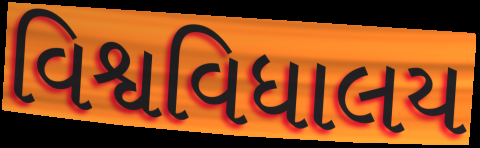
વિશ્વવિધાલય